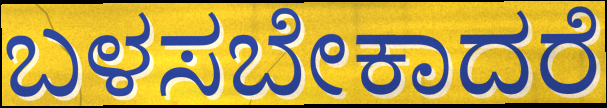
ಬಳಸಬೇಕಾದರೆ